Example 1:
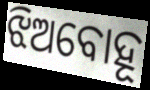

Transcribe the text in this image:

ଝିଅବୋହୂ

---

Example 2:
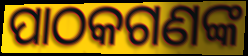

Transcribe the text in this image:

ପାଠକଗଣଙ୍କ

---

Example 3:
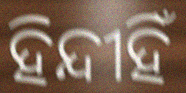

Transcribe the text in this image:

ହିନ୍ଦୀହିଁ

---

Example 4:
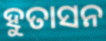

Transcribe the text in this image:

ହୁତାସନ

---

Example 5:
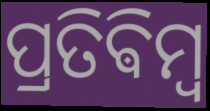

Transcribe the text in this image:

ପ୍ରତିଵିମ୍ବ